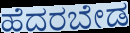
ಹೆದರಬೇಡ